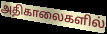
அதிகாலைகளில்